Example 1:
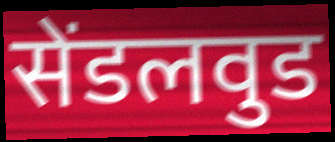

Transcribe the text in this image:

सेंडलवुड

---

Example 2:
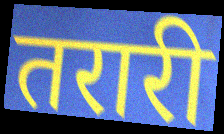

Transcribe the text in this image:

तरारी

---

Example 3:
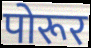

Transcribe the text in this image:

पोरूर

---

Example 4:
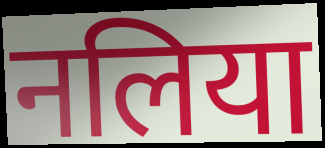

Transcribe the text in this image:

नलिया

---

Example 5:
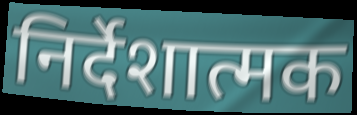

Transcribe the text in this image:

निर्देशात्मक